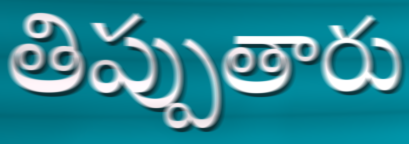
తిప్పుతారు